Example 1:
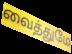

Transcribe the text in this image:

வைத்துமே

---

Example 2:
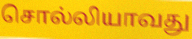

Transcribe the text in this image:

சொல்லியாவது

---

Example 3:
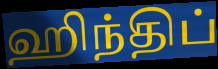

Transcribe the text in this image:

ஹிந்திப்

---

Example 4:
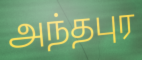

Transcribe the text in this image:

அந்தபுர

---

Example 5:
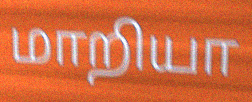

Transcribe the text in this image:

மாறியா